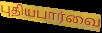
புதியபார்வை